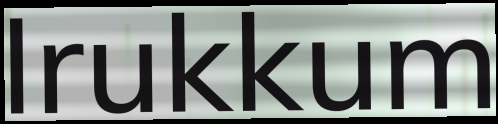
Irukkum